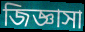
জিজ্ঞাসা